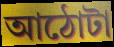
আঠোটা